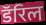
डॅरिल